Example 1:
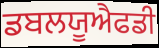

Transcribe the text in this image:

ਡਬਲਯੂਐਫਡੀ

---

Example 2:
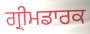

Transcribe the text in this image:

ਗ੍ਰੀਮਡਾਰਕ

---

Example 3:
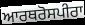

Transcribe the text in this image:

ਆਰਥਰੋਸਪੀਰਾ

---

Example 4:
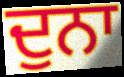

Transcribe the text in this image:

ਦੁਨਾ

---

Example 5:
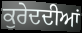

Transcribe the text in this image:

ਕੁਰੇਦਦੀਆਂ